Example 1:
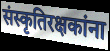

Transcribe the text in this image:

संस्कृतिरक्षकांना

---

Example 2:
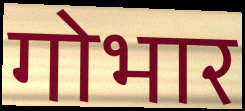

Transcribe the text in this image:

गोभार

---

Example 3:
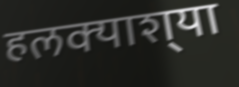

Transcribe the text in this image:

हलक्याश्या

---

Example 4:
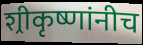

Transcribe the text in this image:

श्रीकृष्णांनीच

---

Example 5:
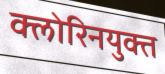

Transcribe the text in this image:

क्लोरिनयुक्त